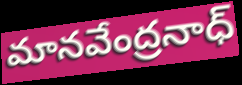
మానవేంద్రనాధ్